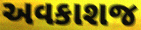
અવકાશજ